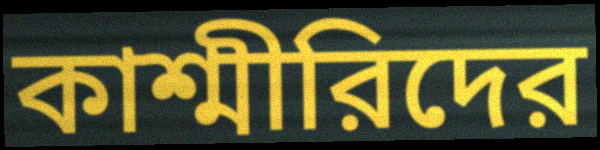
কাশ্মীরিদের